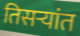
तिसर्‍यांत